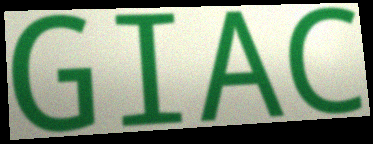
GIAC